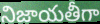
నిజాయతీగా